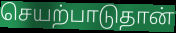
செயற்பாடுதான்